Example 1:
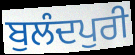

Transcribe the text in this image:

ਬੁਲੰਦਪੁਰੀ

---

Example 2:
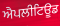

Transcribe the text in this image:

ਐਪਲੀਟਿਊਡ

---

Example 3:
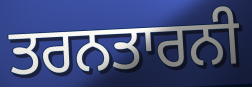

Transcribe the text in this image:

ਤਰਨਤਾਰਨੀ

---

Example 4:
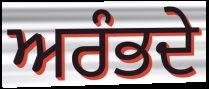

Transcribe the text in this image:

ਅਰੰਭਦੇ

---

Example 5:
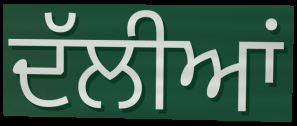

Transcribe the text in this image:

ਦੱਲੀਆਂ